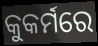
କୁକର୍ମରେ